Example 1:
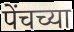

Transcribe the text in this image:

पेंचच्या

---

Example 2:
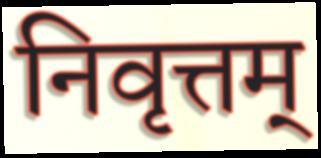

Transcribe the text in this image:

निवृत्तम्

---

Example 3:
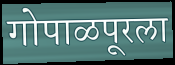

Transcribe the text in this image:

गोपाळपूरला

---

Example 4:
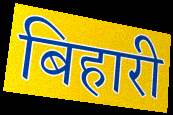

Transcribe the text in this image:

बिहारी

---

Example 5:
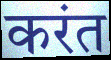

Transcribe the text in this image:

करंत